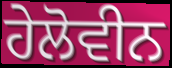
ਹੇਲੋਵੀਨ